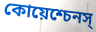
কোয়েশ্চেনস্